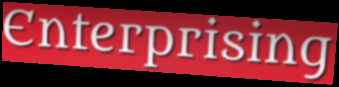
Enterprising